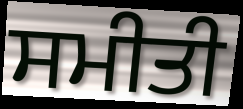
ਸਮੀਤੀ